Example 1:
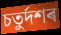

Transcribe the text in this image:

চতুৰ্দশৰ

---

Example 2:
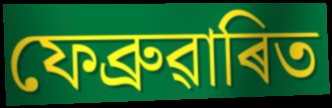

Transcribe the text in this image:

ফেব্ৰুৱাৰিত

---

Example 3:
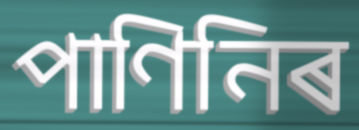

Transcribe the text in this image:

পাণিনিৰ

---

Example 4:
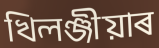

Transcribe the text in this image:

খিলঞ্জীয়াৰ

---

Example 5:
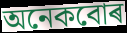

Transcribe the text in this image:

অনেকবোৰ